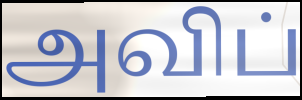
அவிப்